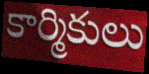
కార్మికులు